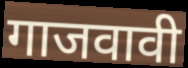
गाजवावी